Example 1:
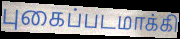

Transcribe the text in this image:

புகைப்படமாக்கி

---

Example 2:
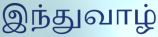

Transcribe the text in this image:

இந்துவாழ்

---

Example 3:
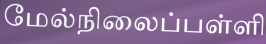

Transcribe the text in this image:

மேல்நிலைப்பள்ளி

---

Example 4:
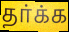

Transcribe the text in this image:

தர்க்க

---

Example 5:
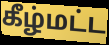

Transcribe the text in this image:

கீழ்மட்ட